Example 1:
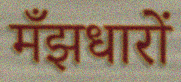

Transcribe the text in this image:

मँझधारों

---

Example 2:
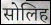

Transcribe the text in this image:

सोलिह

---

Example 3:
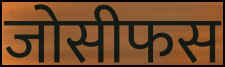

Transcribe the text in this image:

जोसीफस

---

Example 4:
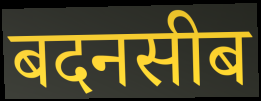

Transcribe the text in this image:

बदनसीब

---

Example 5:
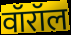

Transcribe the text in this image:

वॉरॉल